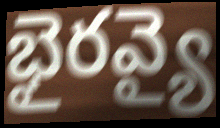
భైరవ్యై